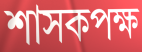
শাসকপক্ষ